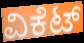
ವಿಕೆಟ್